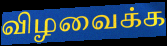
விழவைக்க